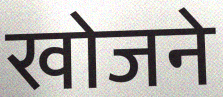
खोजने